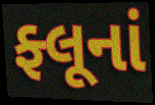
ફ્લૂનાં